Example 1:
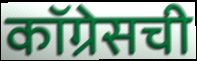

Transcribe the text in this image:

कॉग्रेसची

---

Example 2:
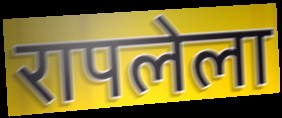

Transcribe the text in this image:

रापलेला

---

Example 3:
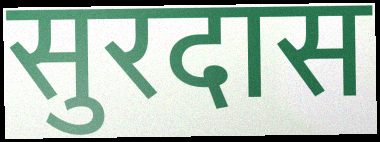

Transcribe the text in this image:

सुरदास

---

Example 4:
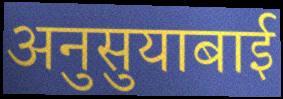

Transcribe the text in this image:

अनुसुयाबाई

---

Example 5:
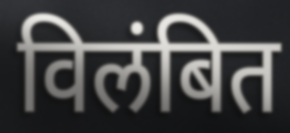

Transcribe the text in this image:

विलंबित